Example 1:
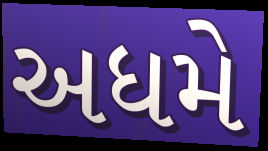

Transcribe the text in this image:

અધમે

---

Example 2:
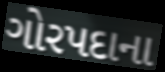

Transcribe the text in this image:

ગોરપદાના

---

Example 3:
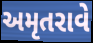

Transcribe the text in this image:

અમૃતરાવે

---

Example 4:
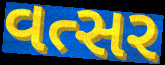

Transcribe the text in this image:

વત્સર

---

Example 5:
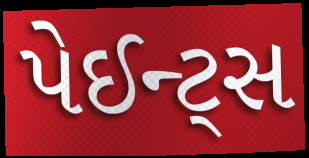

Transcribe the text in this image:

પેઈન્ટ્સ